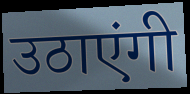
उठाएंगी